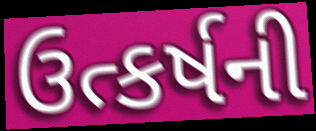
ઉત્કર્ષની